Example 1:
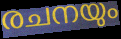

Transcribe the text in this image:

രചനയും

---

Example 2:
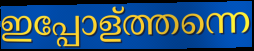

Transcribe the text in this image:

ഇപ്പോള്ത്തന്നെ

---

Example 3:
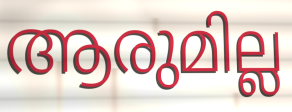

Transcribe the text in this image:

ആരുമില്ല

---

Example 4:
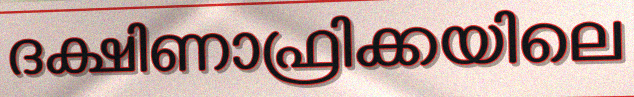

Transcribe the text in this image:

ദക്ഷിണാഫ്രിക്കയിലെ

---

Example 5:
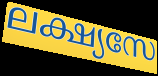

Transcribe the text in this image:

ലക്ഷ്യസേ